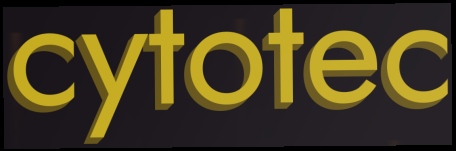
cytotec